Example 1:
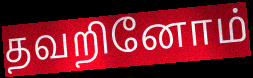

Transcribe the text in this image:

தவறினோம்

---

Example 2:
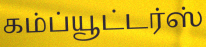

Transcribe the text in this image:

கம்ப்யூட்டர்ஸ்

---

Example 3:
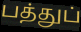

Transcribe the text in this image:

பத்துப்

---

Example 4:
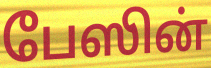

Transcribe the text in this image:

பேஸின்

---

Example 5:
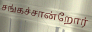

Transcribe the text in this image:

சங்கச்சான்றோர்